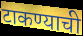
टाकण्याची